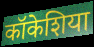
कॉकेशिया